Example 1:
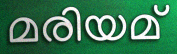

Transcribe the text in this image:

മരിയമ്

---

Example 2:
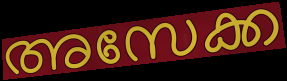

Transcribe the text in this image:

അസേക്ക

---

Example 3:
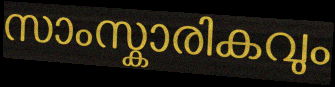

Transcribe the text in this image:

സാംസ്കാരികവും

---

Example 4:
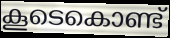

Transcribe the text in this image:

കൂടെകൊണ്ട്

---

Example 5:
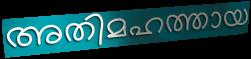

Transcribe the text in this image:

അതിമഹത്തായ